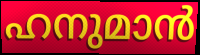
ഹനുമാൻ